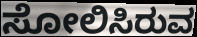
ಸೋಲಿಸಿರುವ